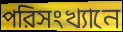
পরিসংখ্যানে